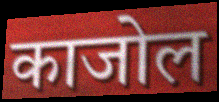
काजोल